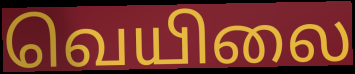
வெயிலை